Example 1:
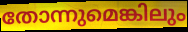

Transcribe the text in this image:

തോന്നുമെങ്കിലും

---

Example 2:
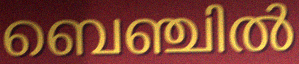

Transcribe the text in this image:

ബെഞ്ചിൽ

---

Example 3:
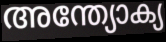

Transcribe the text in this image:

അന്ത്യോക്യ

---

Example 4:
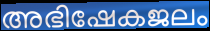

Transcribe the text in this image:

അഭിഷേകജലം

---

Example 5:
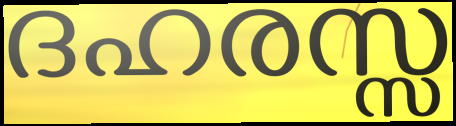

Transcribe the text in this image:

ദഹരസ്സ